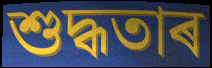
শুদ্ধতাৰ